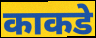
काकडे